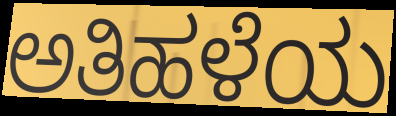
ಅತಿಹಳೆಯ